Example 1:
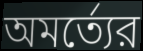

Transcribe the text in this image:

অমর্ত্যের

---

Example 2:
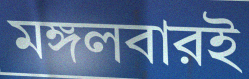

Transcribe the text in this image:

মঙ্গলবারই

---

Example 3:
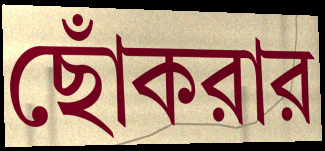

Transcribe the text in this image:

ছোঁকরার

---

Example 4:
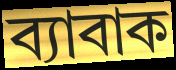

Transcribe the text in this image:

ব্যাবাক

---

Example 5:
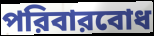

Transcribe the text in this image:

পরিবারবোধ